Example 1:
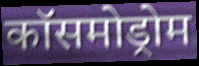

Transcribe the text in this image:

कॉसमोड्रोम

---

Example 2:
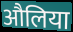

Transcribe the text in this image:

औलिया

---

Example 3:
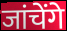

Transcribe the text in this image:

जांचेंगे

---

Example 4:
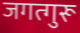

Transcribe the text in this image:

जगत्गुरू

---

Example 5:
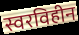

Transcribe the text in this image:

स्वरविहीन